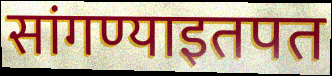
सांगण्याइतपत